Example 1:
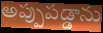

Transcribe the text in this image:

అప్పుపడ్డాను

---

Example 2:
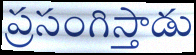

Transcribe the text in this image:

ప్రసంగిస్తాడు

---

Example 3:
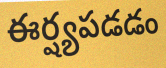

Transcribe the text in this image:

ఈర్ష్యపడడం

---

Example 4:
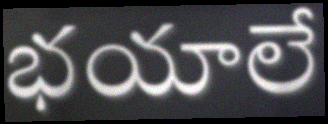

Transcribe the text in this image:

భయాలే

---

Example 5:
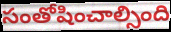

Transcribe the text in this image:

సంతోషించాల్సింది